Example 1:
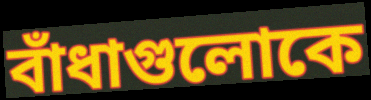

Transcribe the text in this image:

বাঁধাগুলোকে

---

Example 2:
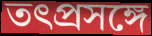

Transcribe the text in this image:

তৎপ্রসঙ্গে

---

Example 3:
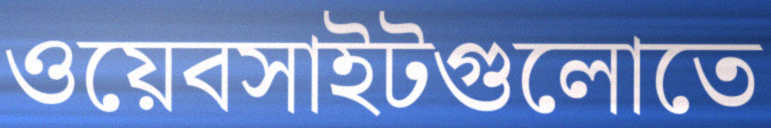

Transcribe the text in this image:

ওয়েবসাইটগুলোতে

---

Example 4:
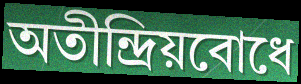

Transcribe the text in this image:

অতীন্দ্রিয়বোধে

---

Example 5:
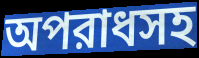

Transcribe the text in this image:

অপরাধসহ